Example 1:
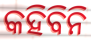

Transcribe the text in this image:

କହିବିନି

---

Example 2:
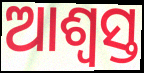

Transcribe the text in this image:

ଆଶ୍ବସ୍ତ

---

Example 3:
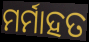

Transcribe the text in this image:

ମର୍ମାହତ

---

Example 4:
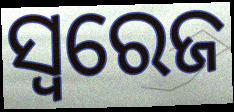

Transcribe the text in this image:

ସ୍ବରେଜ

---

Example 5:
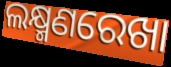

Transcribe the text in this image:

ଲକ୍ଷ୍ମଣରେଖା